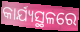
କାର୍ଯ୍ୟସ୍ଥଳରେ